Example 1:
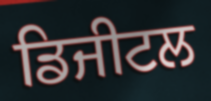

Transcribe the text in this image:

ਡਿਜੀਟਲ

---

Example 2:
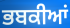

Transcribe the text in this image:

ਭਬਕੀਆਂ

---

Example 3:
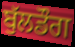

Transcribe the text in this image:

ਬੁੱਲਡੌਗ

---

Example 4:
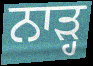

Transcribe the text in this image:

ਨਾੜ੍ਹ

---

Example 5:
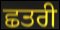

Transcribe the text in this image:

ਛਤਰੀ